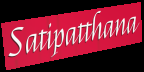
Satipatthana